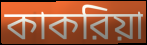
কাকরিয়া